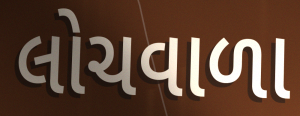
લોચવાળા